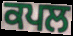
ਕਪਲ